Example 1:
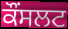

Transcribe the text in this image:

ਕੌਂਸਲਟ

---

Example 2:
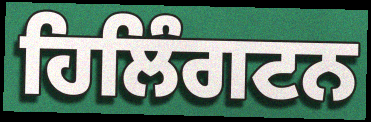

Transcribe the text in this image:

ਹਿਲਿੰਗਟਨ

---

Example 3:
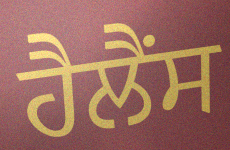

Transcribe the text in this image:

ਹੈਲੈਂਸ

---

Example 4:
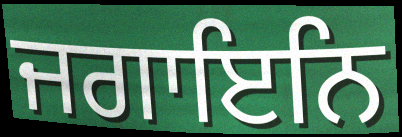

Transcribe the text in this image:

ਜਗਾਇਨਿ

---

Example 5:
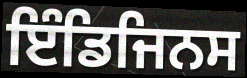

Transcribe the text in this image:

ਇੰਡਿਜਿਨਸ